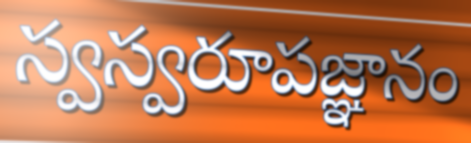
స్వస్వరూపజ్ఞానం